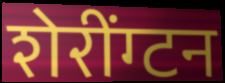
शेरींग्टन